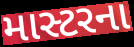
માસ્ટરના